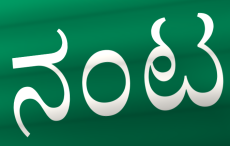
ನಂಟ